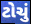
ટોચું